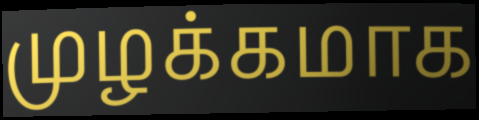
முழக்கமாக